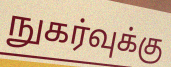
நுகர்வுக்கு